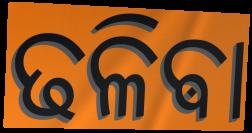
ଢଳିଵା